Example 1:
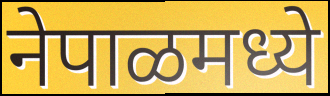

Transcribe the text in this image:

नेपाळमध्ये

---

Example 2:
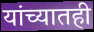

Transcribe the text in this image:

यांच्यातही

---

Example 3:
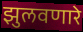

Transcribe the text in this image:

झुलवणारे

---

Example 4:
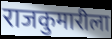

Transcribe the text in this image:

राजकुमारीला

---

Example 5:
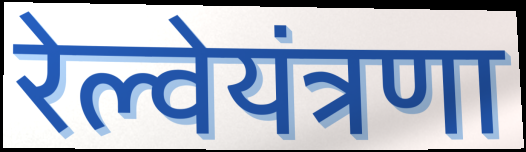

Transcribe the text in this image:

रेल्वेयंत्रणा